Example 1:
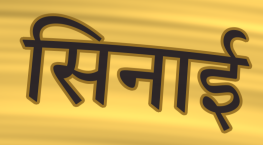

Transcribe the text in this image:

सिनाई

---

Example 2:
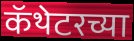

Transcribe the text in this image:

कॅथेटरच्या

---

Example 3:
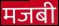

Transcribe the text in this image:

मजबी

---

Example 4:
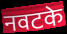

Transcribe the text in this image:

नवटके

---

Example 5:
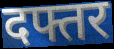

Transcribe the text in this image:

दफ्तर